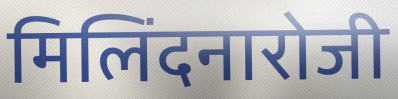
मिलिंदनारोजी